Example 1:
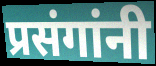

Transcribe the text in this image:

प्रसंगांनी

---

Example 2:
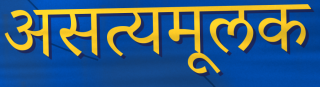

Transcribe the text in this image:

असत्यमूलक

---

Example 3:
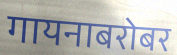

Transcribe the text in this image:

गायनाबरोबर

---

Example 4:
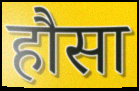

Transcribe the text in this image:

हौसा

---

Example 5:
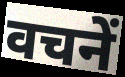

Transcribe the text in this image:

वचनें